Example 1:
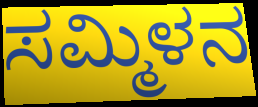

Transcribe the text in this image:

ಸಮ್ಮಿಳನ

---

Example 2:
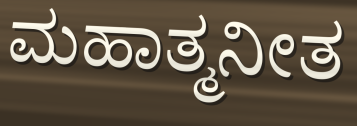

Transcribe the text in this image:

ಮಹಾತ್ಮನೀತ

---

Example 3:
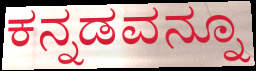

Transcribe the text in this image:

ಕನ್ನಡವನ್ನೂ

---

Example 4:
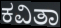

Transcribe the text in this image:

ಕವಿತಾ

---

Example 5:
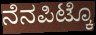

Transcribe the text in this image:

ನೆನಪಿಟ್ಕೊ